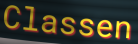
Classen